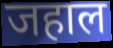
जहाल